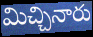
మిచ్చినారు